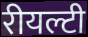
रीयल्टी